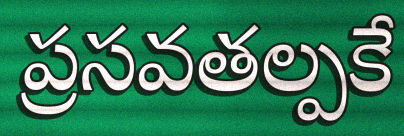
ప్రసవతల్పకే